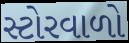
સ્ટોરવાળો